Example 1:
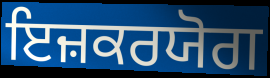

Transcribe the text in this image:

ਇਜ਼ਕਰਯੋਗ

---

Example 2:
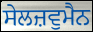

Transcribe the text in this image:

ਸੇਲਜ਼ਵੁਮੈਨ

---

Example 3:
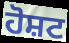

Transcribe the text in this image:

ਹੋਸ਼ਟ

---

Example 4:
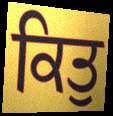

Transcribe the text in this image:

ਕਿਤੁ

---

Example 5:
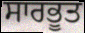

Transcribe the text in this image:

ਸਾਰਭੂਤ